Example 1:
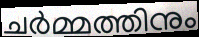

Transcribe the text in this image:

ചർമ്മത്തിനും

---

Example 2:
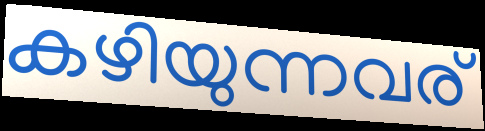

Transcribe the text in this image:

കഴിയുന്നവര്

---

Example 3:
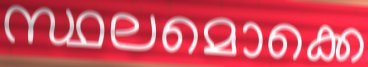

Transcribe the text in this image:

സ്ഥലമൊക്കെ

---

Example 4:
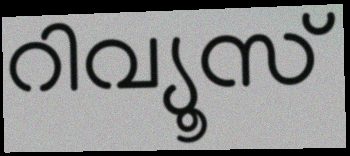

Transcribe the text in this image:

റിവ്യൂസ്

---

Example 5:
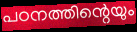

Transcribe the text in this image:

പഠനത്തിന്റെയും